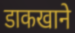
डाकखाने